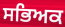
ਸਭਿਅਕ